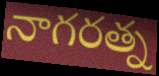
నాగరత్న